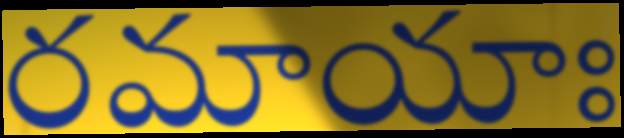
రమాయాః